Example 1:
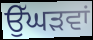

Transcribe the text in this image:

ਉੱਘੜਵਾਂ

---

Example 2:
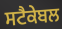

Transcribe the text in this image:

ਸਟੈਕੇਬਲ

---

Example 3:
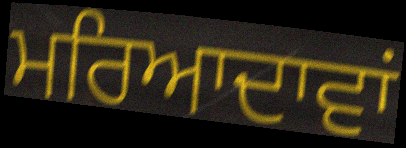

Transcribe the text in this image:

ਮਰਿਆਦਾਵਾਂ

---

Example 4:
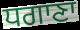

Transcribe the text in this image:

ਧਗਾਣਾ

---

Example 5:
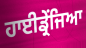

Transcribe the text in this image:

ਹਾਈਡ੍ਰੇਂਜਿਆ